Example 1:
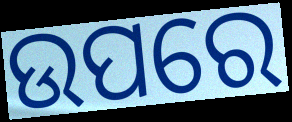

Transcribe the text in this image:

ଉପରେ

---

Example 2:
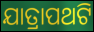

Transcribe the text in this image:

ଯାତ୍ରାପଥଟି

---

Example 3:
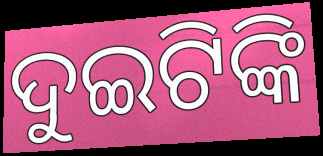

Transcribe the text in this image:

ଦୁଇଟିଙ୍କି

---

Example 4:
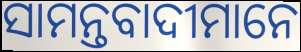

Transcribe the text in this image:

ସାମନ୍ତବାଦୀମାନେ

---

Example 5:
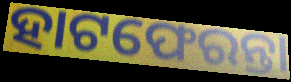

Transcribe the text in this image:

ହାଟଫେରନ୍ତା